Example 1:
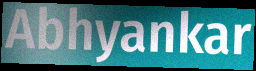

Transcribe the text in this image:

Abhyankar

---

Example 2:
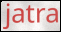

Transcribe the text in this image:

jatra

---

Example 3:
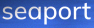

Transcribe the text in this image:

seaport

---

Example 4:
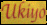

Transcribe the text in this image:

Ukiyo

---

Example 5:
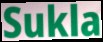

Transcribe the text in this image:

Sukla